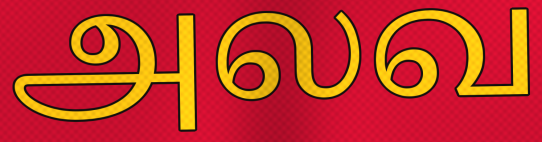
அலவ